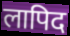
लापिद